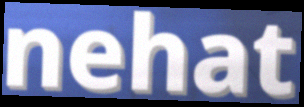
nehat